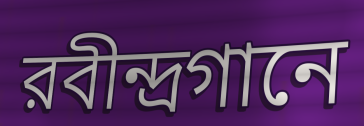
রবীন্দ্রগানে